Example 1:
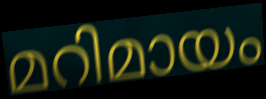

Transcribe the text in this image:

മറിമായം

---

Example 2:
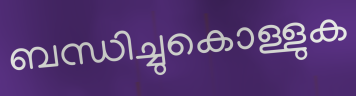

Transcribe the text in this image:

ബന്ധിച്ചുകൊള്ളുക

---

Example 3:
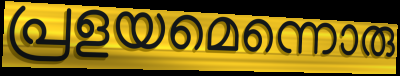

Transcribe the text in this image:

പ്രളയമെന്നൊരു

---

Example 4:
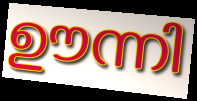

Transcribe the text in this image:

ഊന്നി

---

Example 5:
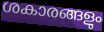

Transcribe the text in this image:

ശകാരങ്ങളും